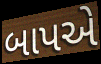
બાપએ